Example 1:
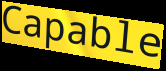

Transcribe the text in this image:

Capable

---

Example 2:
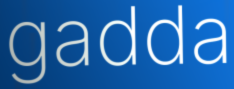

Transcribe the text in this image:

gadda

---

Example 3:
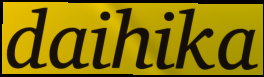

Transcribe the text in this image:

daihika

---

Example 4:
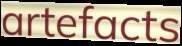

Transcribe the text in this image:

artefacts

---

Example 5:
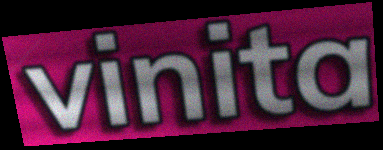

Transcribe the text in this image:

vinita